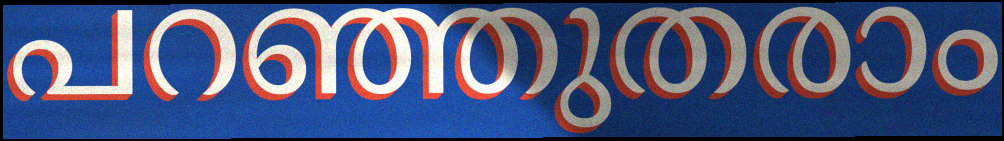
പറഞ്ഞുതരാം